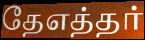
தேஎத்தர்